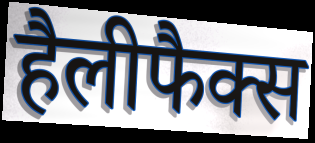
हैलीफैक्स